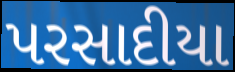
પરસાદીયા